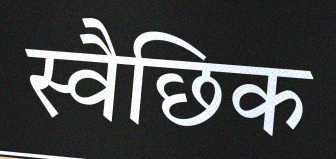
स्वैछिक